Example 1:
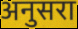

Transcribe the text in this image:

अनुसरा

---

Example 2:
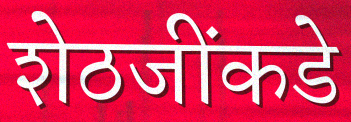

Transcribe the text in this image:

शेठजींकडे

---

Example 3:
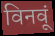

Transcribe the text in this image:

विनवूं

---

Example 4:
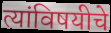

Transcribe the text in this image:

त्यांविषयीचे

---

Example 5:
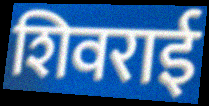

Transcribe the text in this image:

शिवराई